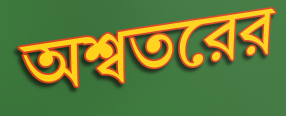
অশ্বতরের